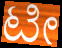
ಟೀ